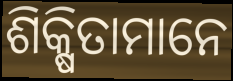
ଶିକ୍ଷିତାମାନେ